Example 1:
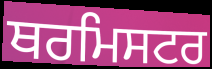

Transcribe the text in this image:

ਥਰਮਿਸਟਰ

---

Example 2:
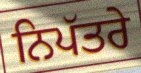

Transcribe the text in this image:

ਨਿਪੱਤਰੇ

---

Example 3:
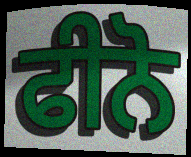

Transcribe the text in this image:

ਫੀਨੋ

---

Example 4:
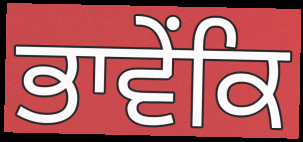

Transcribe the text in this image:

ਭਾਵੇਂਕਿ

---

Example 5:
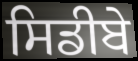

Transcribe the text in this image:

ਸਿਡੀਬੇ